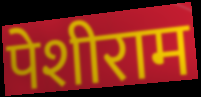
पेशीराम